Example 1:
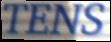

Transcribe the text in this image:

TENS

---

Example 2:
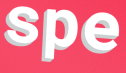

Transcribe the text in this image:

spe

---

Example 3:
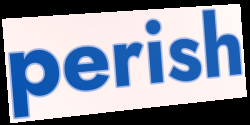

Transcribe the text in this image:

perish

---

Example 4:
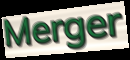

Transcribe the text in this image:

Merger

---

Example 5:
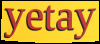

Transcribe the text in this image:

yetay